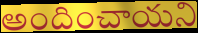
అందించాయని